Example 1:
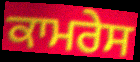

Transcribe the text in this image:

ਕਾਮਰੇਸ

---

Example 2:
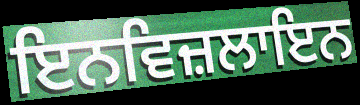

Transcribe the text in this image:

ਇਨਵਿਜ਼ਲਾਇਨ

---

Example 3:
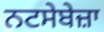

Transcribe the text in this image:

ਨਟਸੇਬੇਜ਼ਾ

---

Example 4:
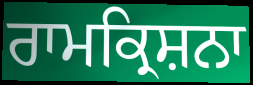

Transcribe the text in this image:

ਰਾਮਕ੍ਰਿਸ਼ਨਾ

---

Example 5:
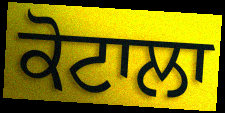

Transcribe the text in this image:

ਕੋਟਾਲਾ